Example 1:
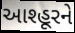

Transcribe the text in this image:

આશ્હૂરને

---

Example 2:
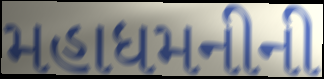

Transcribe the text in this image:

મહાધમનીની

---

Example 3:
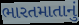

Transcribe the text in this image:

ભારતમાતાનું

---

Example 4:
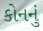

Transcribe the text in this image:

કોનનું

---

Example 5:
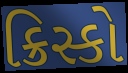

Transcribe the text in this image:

ક્રિસ્કો